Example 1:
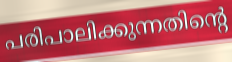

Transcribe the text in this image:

പരിപാലിക്കുന്നതിന്റെ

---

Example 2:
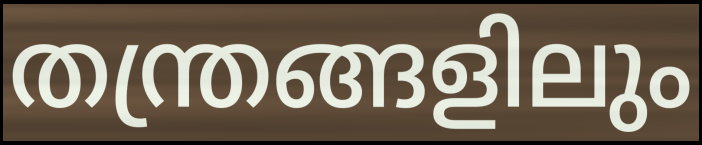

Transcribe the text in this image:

തന്ത്രങ്ങളിലും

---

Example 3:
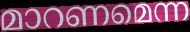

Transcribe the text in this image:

മാറണമെന്ന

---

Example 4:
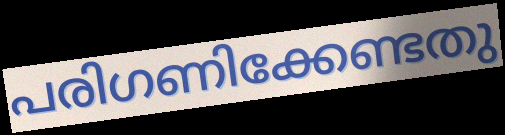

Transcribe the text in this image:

പരിഗണിക്കേണ്ടതു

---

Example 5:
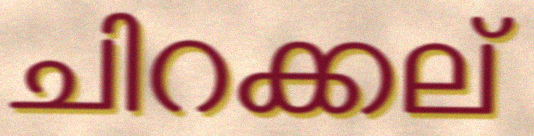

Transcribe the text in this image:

ചിറക്കല്